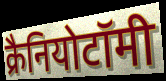
क्रैनियोटॉमी